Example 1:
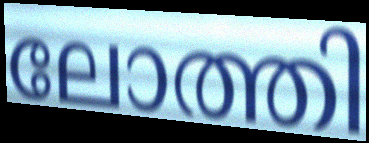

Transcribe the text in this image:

ലോത്തി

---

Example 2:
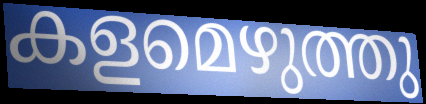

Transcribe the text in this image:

കളമെഴുത്തു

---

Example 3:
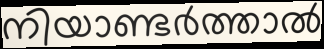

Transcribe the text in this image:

നിയാണ്ടർത്താൽ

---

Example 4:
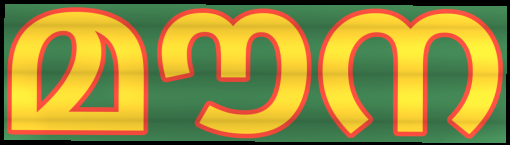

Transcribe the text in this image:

മൗന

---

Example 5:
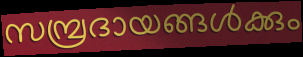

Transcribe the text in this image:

സമ്പ്രദായങ്ങൾക്കും